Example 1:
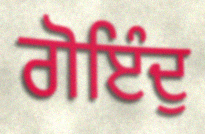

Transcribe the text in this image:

ਗੋਇੰਦੁ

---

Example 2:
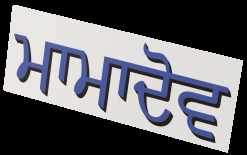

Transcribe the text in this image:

ਮਾਮਾਦੋਵ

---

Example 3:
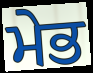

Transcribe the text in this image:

ਮੇਭ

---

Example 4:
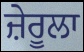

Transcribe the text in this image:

ਜ਼ੇਰੂਲਾ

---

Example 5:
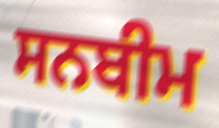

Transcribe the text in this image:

ਸਨਬੀਮ